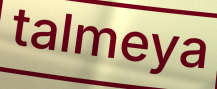
talmeya